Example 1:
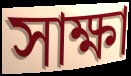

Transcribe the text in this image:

সাক্ষা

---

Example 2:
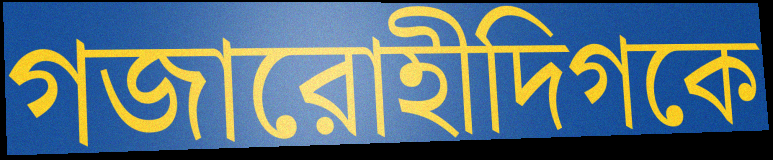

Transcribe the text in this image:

গজারোহীদিগকে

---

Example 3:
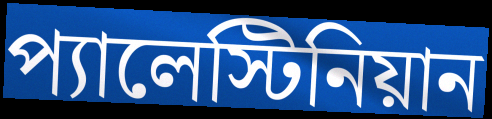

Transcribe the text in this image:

প্যালেস্টিনিয়ান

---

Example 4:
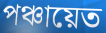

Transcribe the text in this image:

পঞ্চায়েত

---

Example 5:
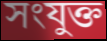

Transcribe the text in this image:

সংযুক্ত